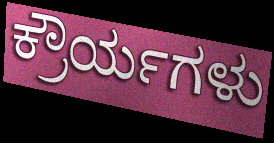
ಕ್ರೌರ್ಯಗಳು